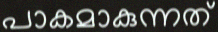
പാകമാകുന്നത്